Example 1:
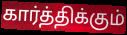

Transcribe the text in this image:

கார்த்திக்கும்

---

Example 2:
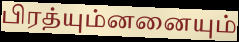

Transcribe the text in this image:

பிரத்யும்னனையும்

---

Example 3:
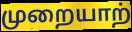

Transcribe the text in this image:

முறையாற்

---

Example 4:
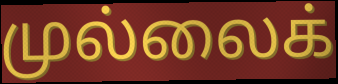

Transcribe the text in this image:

முல்லைக்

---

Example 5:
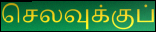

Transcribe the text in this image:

செலவுக்குப்